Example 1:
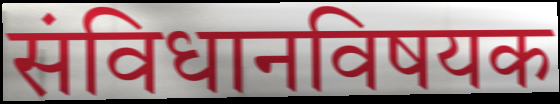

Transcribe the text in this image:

संविधानविषयक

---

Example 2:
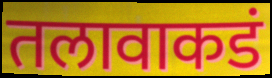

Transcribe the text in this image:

तलावाकडं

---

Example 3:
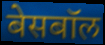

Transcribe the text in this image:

बेसबॉल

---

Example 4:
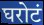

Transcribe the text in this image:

घरोटं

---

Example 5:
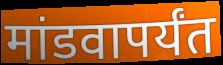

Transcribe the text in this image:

मांडवापर्यंत